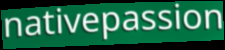
nativepassion